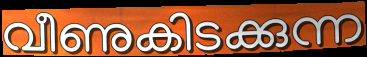
വീണുകിടക്കുന്ന